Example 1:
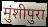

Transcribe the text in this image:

मुंशीपुरा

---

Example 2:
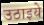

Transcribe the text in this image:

उठाइये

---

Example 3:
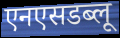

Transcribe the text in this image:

एनएसडब्लू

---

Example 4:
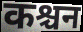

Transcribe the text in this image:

कश्चन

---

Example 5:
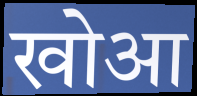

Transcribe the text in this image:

खोआ